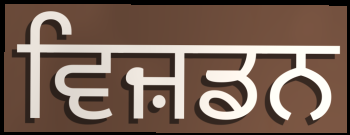
ਵਿਜ਼ਡਨ